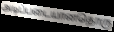
அடிப்படையானதொரு